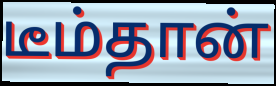
டீம்தான்